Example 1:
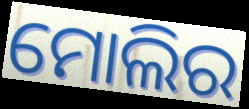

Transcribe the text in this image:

ମୋଲିର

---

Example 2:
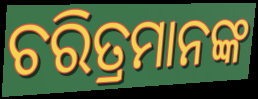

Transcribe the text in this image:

ଚରିତ୍ରମାନଙ୍କ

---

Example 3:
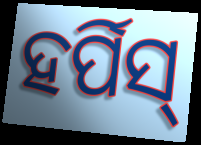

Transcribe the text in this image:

ହର୍ପିସ୍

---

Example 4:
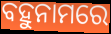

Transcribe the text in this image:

ବହୁନାମରେ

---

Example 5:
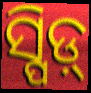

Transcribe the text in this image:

ସ୍ପିଡ଼୍